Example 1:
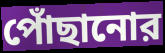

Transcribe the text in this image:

পোঁছানোর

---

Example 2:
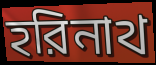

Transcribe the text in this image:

হরিনাথ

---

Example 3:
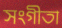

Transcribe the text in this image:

সংগীতা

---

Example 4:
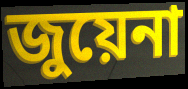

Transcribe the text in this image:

জুয়েনা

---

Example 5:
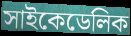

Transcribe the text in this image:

সাইকেডেলিক